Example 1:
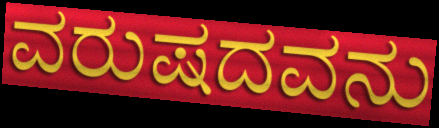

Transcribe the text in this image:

ವರುಷದವನು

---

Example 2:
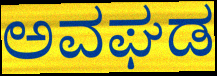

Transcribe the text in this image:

ಅವಘಡ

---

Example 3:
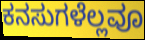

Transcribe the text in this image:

ಕನಸುಗಳೆಲ್ಲವೂ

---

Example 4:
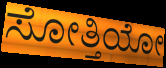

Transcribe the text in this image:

ಸೋತ್ತಿಯೋ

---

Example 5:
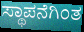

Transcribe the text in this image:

ಸ್ಥಾಪನೆಗಿಂತ